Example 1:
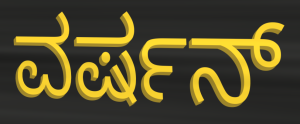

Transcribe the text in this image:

ವರ್ಷನ್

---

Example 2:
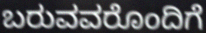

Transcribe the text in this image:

ಬರುವವರೊಂದಿಗೆ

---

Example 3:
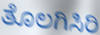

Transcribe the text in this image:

ತೊಲಗಿಸಿರಿ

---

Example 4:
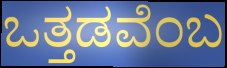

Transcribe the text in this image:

ಒತ್ತಡವೆಂಬ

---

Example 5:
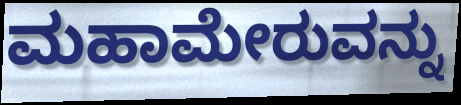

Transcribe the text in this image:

ಮಹಾಮೇರುವನ್ನು